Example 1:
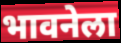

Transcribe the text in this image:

भावनेला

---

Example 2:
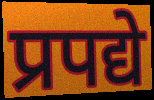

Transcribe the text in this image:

प्रपद्ये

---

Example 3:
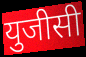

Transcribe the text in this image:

युजीसी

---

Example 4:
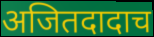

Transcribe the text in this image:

अजितदादाच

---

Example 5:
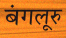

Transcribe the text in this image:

बंगलूरु